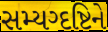
સમ્યગ્દષ્ટિને